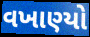
વખાણ્યો